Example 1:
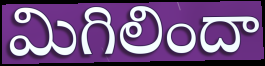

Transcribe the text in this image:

మిగిలిందా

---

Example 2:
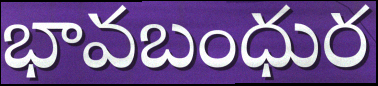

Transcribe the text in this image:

భావబంధుర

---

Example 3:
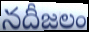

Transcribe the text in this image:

నదీజలం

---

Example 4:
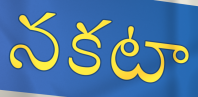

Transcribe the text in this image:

నకటా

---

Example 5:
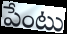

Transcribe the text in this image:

పేంటు